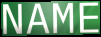
NAME